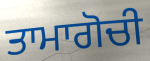
ਤਾਮਾਗੋਚੀ